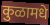
कुळामधे